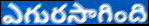
ఎగురసాగింది